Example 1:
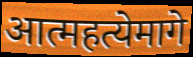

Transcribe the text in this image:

आत्महत्येमागे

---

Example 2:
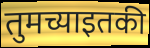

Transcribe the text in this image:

तुमच्याइतकी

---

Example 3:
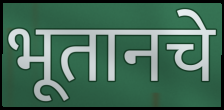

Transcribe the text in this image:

भूतानचे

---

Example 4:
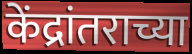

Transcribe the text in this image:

केंद्रांतराच्या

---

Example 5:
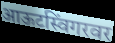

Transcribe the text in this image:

आऊटस्विंगरवर